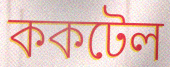
ককটেল